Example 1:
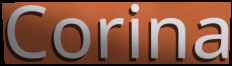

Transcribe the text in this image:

Corina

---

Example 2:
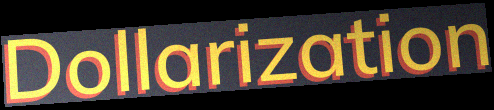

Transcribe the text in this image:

Dollarization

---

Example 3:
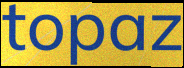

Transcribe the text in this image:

topaz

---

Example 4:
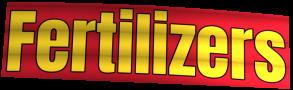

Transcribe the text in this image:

Fertilizers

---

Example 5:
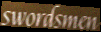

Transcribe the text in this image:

swordsmen